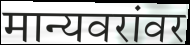
मान्यवरांवर